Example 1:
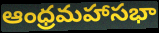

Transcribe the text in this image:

ఆంధ్రమహాసభా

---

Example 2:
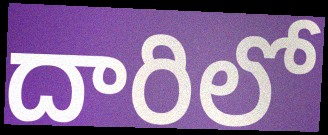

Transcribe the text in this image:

దారిలో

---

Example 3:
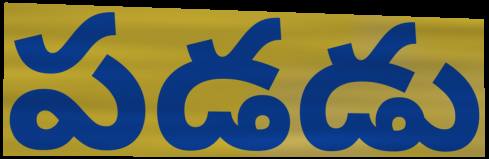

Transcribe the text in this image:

పడడు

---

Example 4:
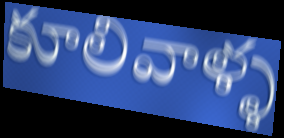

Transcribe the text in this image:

కూలివాళ్ళ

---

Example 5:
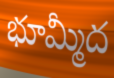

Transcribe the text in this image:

భూమ్మీద